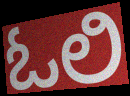
ಓಲಿ